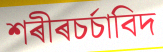
শৰীৰচৰ্চাবিদ